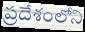
ప్రదేశంలోని